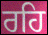
ਰਹਿ